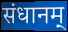
संधानम्